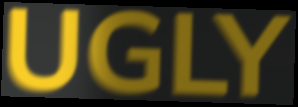
UGLY